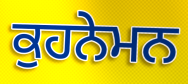
ਕੁਹਨੇਮਨ